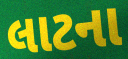
લાટના